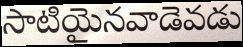
సాటియైనవాడెవడు